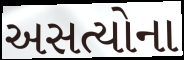
અસત્યોના